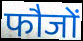
फौजों